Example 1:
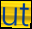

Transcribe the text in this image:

ut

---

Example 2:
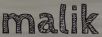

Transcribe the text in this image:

malik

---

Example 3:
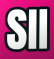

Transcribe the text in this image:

SII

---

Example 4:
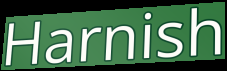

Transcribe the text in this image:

Harnish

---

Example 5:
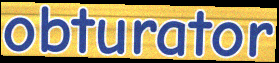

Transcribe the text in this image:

obturator